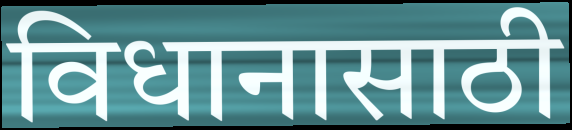
विधानासाठी